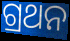
ଗ୍ରଥନ